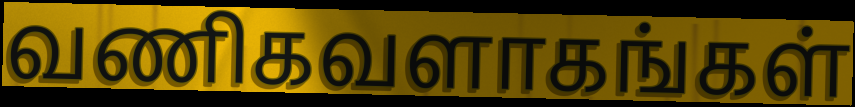
வணிகவளாகங்கள்